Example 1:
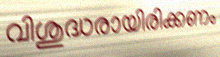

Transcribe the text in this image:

വിശുദ്ധരായിരിക്കണം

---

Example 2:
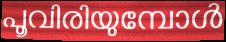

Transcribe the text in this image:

പൂവിരിയുമ്പോൾ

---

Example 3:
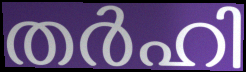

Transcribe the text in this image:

തർഹി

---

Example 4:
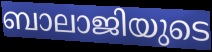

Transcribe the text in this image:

ബാലാജിയുടെ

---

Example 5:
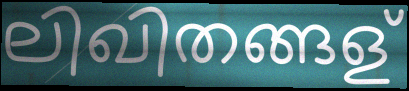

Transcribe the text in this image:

ലിഖിതങ്ങള്